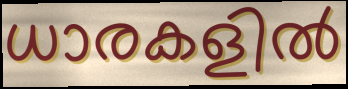
ധാരകളിൽ